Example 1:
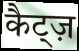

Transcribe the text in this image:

कैट्ज़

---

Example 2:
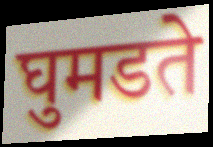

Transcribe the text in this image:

घुमडते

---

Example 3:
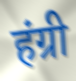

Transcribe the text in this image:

हंग्री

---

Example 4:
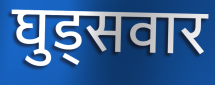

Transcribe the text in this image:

घुड्सवार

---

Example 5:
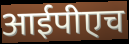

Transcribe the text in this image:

आईपीएच